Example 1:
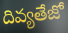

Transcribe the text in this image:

దివ్యతేజో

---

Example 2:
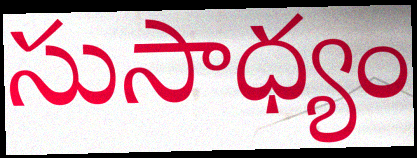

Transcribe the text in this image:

సుసాధ్యం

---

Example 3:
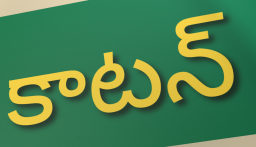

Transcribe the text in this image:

కాటన్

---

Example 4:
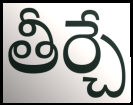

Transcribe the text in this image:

తీర్చే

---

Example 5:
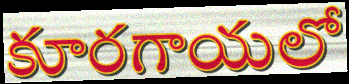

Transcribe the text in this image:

కూరగాయలో